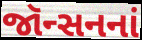
જૉન્સનનાં